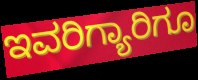
ಇವರಿಗ್ಯಾರಿಗೂ